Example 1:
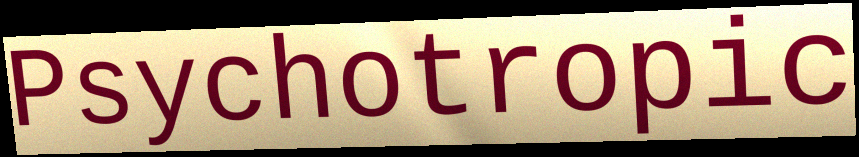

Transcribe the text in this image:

Psychotropic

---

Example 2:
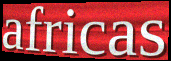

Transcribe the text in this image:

africas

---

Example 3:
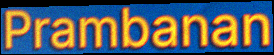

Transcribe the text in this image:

Prambanan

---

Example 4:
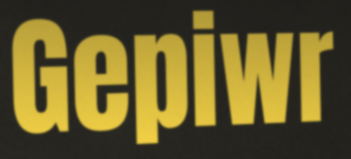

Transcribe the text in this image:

Gepiwr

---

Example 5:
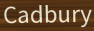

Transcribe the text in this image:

Cadbury